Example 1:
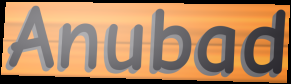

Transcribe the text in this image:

Anubad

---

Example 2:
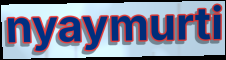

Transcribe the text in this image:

nyaymurti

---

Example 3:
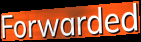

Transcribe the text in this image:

Forwarded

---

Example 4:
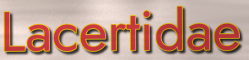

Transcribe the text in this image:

Lacertidae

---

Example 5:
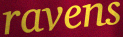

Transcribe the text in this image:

ravens